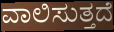
ವಾಲಿಸುತ್ತದೆ